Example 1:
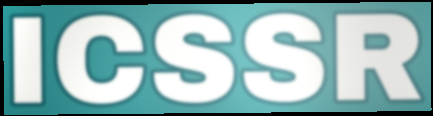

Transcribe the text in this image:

ICSSR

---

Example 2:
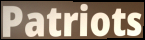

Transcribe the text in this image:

Patriots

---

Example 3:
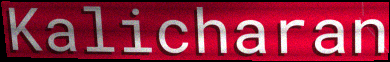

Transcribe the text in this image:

Kalicharan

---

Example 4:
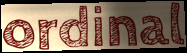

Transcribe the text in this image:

ordinal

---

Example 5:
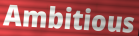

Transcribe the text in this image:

Ambitious